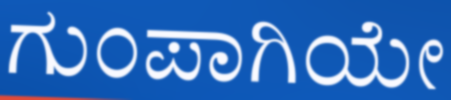
ಗುಂಪಾಗಿಯೇ